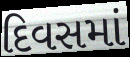
દિવસમાં